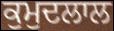
ਕੁਮੁਦਲਾਲ